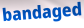
bandaged